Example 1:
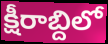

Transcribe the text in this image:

క్షీరాబ్దిలో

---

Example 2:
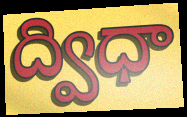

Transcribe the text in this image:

ద్విధా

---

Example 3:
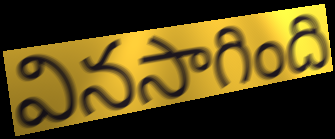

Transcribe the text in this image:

వినసాగింది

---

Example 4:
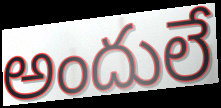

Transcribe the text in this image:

అందులే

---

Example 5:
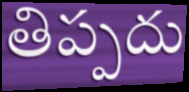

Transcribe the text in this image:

తిప్పదు